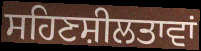
ਸਹਿਣਸ਼ੀਲਤਾਵਾਂ